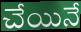
చేయినే